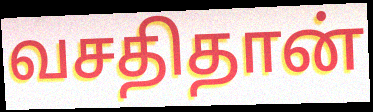
வசதிதான்